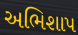
અભિશાપ